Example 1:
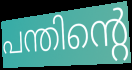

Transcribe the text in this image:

പന്തിന്റെ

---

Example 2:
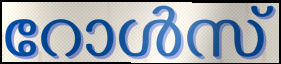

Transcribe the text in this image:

റോൾസ്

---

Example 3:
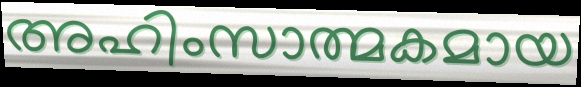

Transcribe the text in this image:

അഹിംസാത്മകമായ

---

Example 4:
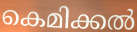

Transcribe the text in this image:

കെമിക്കൽ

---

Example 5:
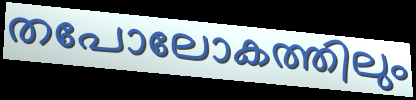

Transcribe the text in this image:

തപോലോകത്തിലും